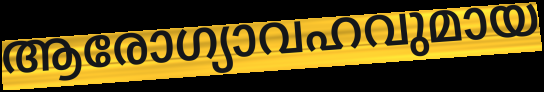
ആരോഗ്യാവഹവുമായ